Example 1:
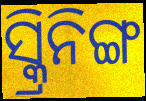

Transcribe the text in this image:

ସ୍କ୍ରିନିଙ୍ଗ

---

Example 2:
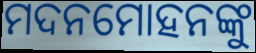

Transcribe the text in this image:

ମଦନମୋହନଙ୍କୁ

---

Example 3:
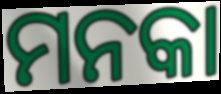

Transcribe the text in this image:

ମନକା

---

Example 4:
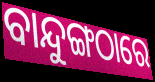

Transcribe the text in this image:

ବାନ୍ଦୁଙ୍ଗଠାରେ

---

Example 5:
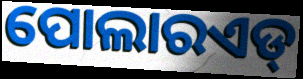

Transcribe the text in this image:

ପୋଲାରଏଡ୍